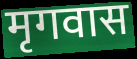
मृगवास